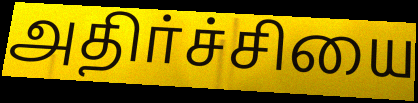
அதிர்ச்சியை